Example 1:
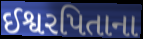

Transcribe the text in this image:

ઈશ્વરપિતાના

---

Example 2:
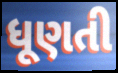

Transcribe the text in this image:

ધૂણતી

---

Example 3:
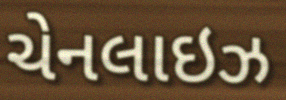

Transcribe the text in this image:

ચેનલાઇઝ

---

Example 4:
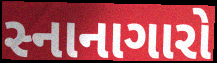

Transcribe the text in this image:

સ્નાનાગારો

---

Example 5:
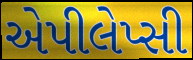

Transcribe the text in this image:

એપીલેપ્સી